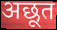
अछूत